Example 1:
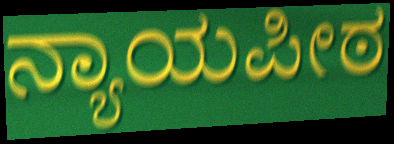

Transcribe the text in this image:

ನ್ಯಾಯಪೀಠ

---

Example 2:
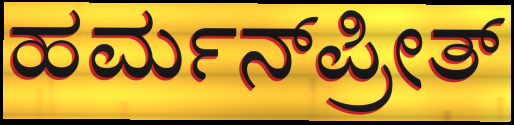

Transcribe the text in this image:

ಹರ್ಮನ್‌ಪ್ರೀತ್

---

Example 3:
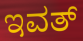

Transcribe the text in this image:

ಇವತ್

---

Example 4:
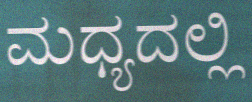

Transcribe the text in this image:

ಮಧ್ಯದಲ್ಲಿ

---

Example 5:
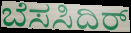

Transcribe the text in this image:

ಬೆಸಸಿದಿರ್